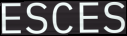
ESCES